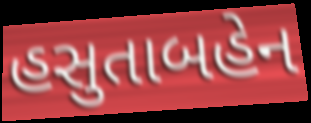
હસુતાબહેન